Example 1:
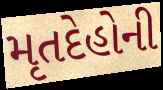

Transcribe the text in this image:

મૃતદેહોની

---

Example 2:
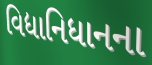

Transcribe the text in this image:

વિદ્યાનિધાનના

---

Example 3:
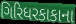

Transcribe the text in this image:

ગિરિધરકાકાના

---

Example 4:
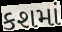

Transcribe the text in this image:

કશમાં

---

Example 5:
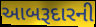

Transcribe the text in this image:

આબરૂદારની